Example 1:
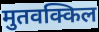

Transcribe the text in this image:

मुतवक्किल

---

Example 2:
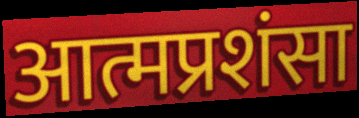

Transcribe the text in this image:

आत्मप्रशंसा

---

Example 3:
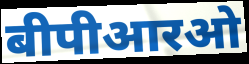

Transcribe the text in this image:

बीपीआरओ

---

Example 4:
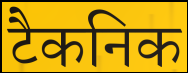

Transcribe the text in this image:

टैकनिक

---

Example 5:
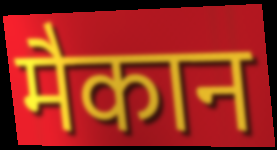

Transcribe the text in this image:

मैकान